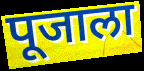
पूजाला